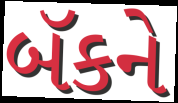
બૅકને